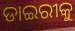
ଡାଇରୀକୁ